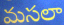
మసలా